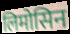
लिमोसिन